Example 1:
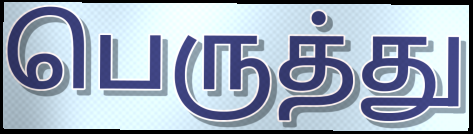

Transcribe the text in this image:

பெருத்து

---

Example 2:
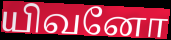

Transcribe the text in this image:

யிவனோ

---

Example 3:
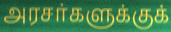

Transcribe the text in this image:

அரசர்களுக்குக்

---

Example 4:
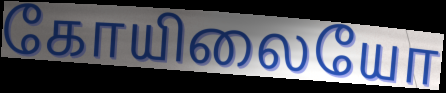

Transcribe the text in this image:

கோயிலையோ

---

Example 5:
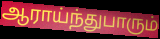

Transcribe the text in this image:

ஆராய்ந்துபாரும்